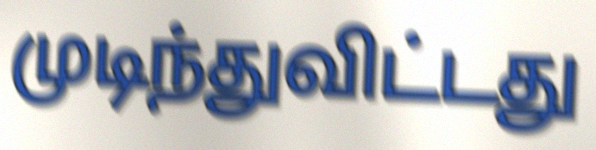
முடிந்துவிட்டது